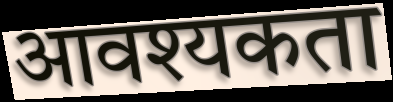
आवश्यकता